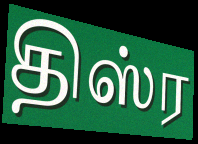
திஸ்ர